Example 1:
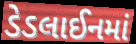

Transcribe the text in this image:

ડેડલાઈનમાં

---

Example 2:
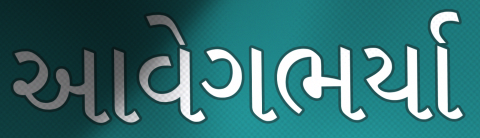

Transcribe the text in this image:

આવેગભર્યા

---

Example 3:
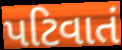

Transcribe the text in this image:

પટિવાતં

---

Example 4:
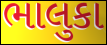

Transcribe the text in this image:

ભાલુકા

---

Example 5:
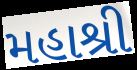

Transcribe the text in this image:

મહાશ્રી